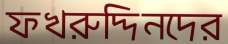
ফখরুদ্দিনদের